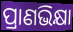
ପ୍ରାଣଭିକ୍ଷା